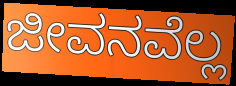
ಜೀವನವೆಲ್ಲ